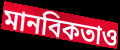
মানবিকতাও